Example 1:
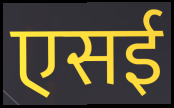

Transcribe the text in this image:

एसई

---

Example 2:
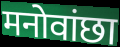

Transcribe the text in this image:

मनोवांछा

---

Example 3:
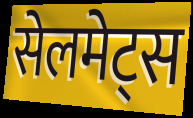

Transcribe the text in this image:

सेलमेट्स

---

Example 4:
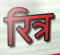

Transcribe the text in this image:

रित्र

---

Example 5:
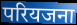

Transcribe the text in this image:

परियजना